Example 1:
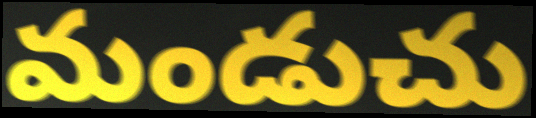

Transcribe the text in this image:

మండుచు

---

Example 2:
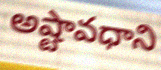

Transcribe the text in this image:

అష్టావధాని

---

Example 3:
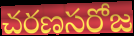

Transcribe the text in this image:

చరణసరోజ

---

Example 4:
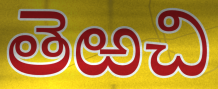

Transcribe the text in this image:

తెఱచి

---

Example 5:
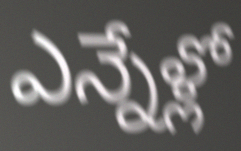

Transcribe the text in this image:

ఎన్నేళ్లో